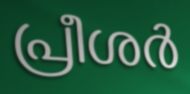
പ്രീശർ